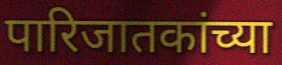
पारिजातकांच्या